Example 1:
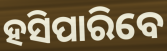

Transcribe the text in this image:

ହସିପାରିବେ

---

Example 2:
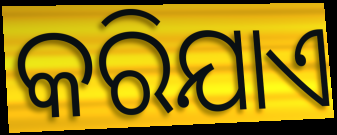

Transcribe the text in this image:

କରିଯାଏ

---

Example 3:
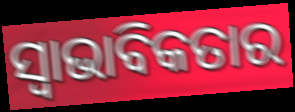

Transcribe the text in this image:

ସ୍ଵାଭାବିକତାର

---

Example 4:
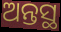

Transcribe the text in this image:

ଅନ୍ତସ୍ଥ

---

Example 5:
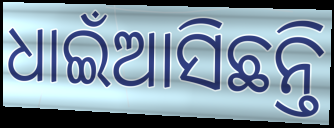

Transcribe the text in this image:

ଧାଇଁଆସିଛନ୍ତି